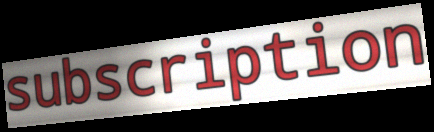
subscription